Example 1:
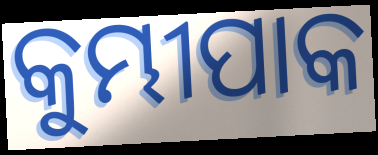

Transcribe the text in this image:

କୁମ୍ଭୀପାକ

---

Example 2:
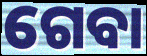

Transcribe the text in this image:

ଗେବା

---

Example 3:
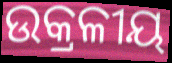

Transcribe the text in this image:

ଉକ୍ରଳୀୟ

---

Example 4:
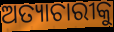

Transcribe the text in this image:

ଅତ୍ୟାଚାରୀକୁ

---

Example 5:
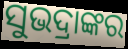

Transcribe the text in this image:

ସୁଭଦ୍ରାଙ୍କର